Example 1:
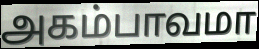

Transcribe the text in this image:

அகம்பாவமா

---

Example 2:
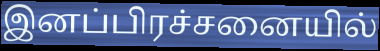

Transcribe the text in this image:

இனப்பிரச்சனையில்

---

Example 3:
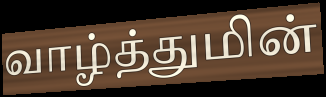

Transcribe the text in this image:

வாழ்த்துமின்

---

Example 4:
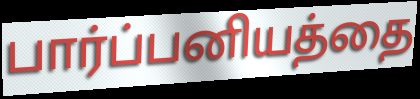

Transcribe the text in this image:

பார்ப்பனியத்தை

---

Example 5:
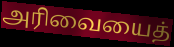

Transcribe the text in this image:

அரிவையைத்